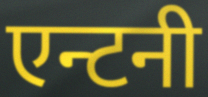
एन्टनी